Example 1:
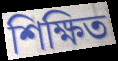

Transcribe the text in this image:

শিক্ষিত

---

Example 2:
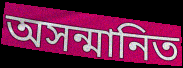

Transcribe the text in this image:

অসন্মানিত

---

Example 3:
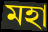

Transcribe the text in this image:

মহা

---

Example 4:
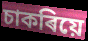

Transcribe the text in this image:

চাকৰিয়ে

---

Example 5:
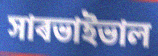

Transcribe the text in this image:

সাৰভাইভাল